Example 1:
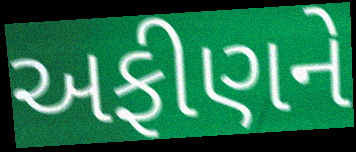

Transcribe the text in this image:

અફીણને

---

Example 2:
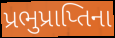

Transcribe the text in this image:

પ્રભુપ્રાપ્તિના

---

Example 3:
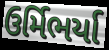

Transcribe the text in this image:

ઉર્મિભર્યા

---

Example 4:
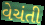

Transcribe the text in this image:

વેચંતી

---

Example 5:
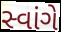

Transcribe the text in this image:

સ્વાંગે